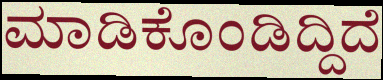
ಮಾಡಿಕೊಂಡಿದ್ದಿದೆ